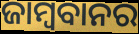
ଜାମ୍ବବାନର